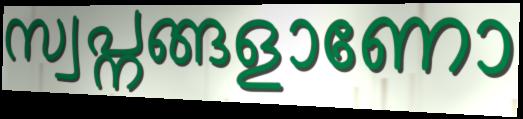
സ്വപ്നങ്ങളാണോ